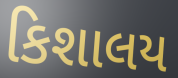
કિશાલય